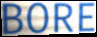
BORE